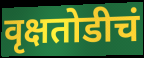
वृक्षतोडीचं